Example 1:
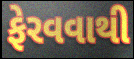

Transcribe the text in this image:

ફેરવવાથી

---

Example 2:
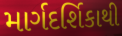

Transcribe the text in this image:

માર્ગદર્શિકાથી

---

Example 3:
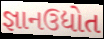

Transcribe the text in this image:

જ્ઞાનઉદ્યોત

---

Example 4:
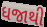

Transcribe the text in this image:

ધજાથી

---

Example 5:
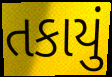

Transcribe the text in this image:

તકાયું